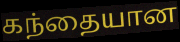
கந்தையான